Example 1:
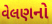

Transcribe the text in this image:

વેલણનો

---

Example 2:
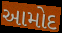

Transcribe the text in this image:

આમોદ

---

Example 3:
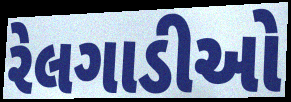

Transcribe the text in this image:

રેલગાડીઓ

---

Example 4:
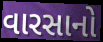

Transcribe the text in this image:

વારસાનો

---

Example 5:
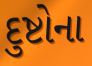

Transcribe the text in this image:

દુષ્ટોના